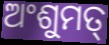
ଅଂଶୁମତ୍